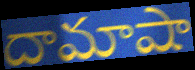
దామాషా